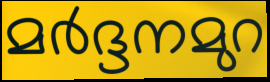
മർദ്ദനമുറ